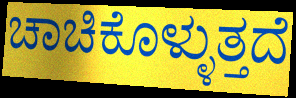
ಚಾಚಿಕೊಳ್ಳುತ್ತದೆ